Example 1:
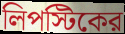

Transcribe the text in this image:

লিপস্টিকের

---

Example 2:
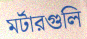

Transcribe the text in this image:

মর্টারগুলি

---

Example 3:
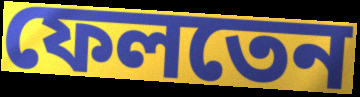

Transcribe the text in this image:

ফেলতেন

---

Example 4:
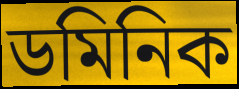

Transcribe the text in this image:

ডমিনিক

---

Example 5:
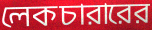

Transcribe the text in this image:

লেকচারারের